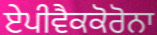
ਏਪੀਵੈਕਕੋਰੋਨਾ